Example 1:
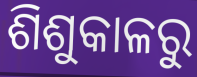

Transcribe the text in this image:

ଶିଶୁକାଳରୁ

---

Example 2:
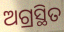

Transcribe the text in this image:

ଅଗ୍ରସ୍ଥିତ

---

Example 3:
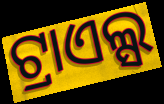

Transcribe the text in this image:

ଟ୍ରାଏଲ୍ସ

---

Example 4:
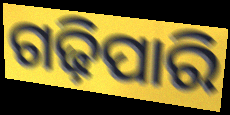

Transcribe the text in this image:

ଗଢ଼ିପାରି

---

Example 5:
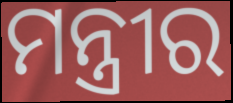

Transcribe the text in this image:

ମନ୍ତ୍ରୀର